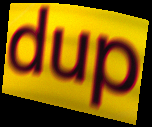
dup